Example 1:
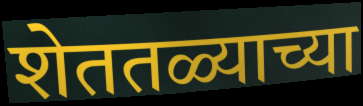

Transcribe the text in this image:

शेततळ्याच्या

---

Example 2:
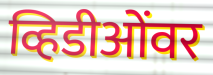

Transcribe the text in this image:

व्हिडीओंवर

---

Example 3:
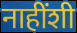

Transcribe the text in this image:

नाहींशी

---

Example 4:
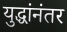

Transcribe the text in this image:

युद्धांनंतर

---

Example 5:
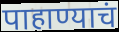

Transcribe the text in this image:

पाहाण्याचं